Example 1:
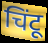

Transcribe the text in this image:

चिंटू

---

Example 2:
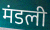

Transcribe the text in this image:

मंडली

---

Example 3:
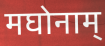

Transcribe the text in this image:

मघोनाम्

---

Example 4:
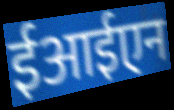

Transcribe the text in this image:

ईआईएन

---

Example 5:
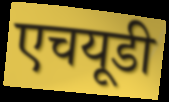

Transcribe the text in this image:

एचयूडी